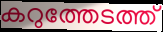
കറുത്തേടത്ത്